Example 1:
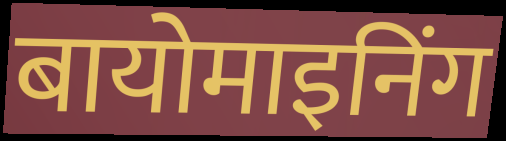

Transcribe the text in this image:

बायोमाइनिंग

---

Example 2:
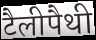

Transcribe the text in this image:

टैलीपैथी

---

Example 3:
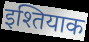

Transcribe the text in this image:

इश्तियाक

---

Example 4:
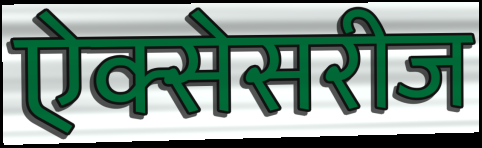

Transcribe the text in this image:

ऐक्सेसरीज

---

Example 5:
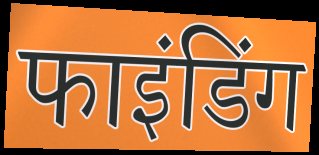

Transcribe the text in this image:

फाइंडिंग